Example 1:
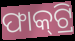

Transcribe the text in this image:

ଫାକ୍‍ଟ୍ରି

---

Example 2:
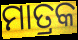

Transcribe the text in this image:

ମାତ୍ରକ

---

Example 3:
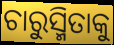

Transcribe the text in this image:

ଚାରୁସ୍ମିତାକୁ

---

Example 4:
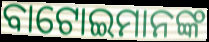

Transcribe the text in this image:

ବାଟୋଇମାନଙ୍କ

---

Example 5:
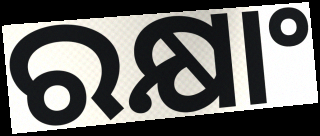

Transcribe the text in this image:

ରକ୍ଷାଂ